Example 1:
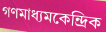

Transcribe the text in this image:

গণমাধ্যমকেন্দ্রিক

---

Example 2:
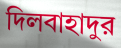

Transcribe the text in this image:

দিলবাহাদুর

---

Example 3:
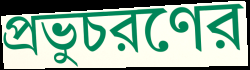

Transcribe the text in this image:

প্রভুচরণের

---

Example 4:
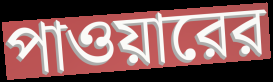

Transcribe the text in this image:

পাওয়ারের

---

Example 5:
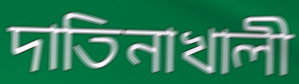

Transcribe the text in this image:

দাতিনাখালী